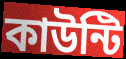
কাউন্টি